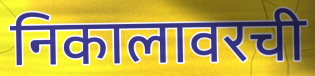
निकालावरची